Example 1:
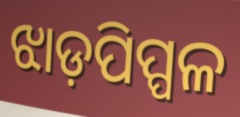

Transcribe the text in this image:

ଝାଡ଼ପିପ୍ପଳ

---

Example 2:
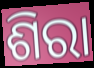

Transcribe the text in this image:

ଶିରା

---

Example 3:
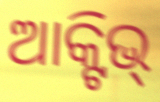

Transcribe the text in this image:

ଆକ୍ଟିଭ୍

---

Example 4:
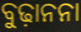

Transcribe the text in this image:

ବୁଢ଼ାନନା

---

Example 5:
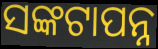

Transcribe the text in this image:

ସଙ୍କଟାପନ୍ନ